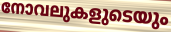
നോവലുകളുടെയും